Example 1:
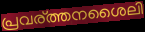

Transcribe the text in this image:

പ്രവര്ത്തനശൈലി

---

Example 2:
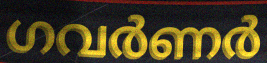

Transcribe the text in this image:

ഗവർണർ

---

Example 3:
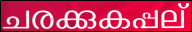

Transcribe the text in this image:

ചരക്കുകപ്പല്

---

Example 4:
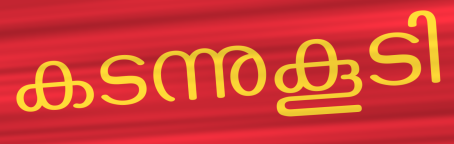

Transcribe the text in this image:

കടന്നുകൂടി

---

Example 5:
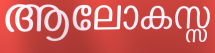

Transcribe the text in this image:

ആലോകസ്സ